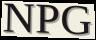
NPG